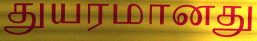
துயரமானது